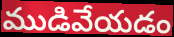
ముడివేయడం